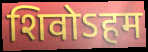
शिवोऽहम